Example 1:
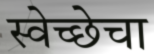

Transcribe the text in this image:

स्वेच्छेचा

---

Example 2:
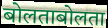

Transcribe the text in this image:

बोलताबोलता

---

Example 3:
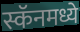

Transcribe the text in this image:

स्कॅनमध्ये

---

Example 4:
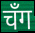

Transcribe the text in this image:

चँग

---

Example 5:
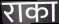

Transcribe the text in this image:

राका